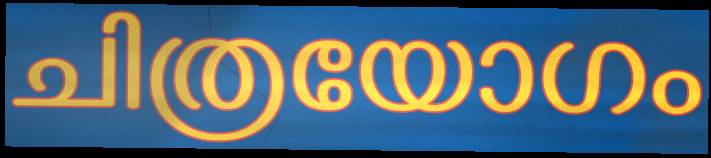
ചിത്രയോഗം